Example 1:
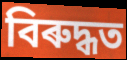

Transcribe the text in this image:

বিৰুদ্ধত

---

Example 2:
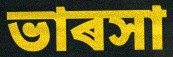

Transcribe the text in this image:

ভাৰসা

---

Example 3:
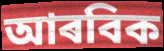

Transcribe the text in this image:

আৰবিক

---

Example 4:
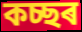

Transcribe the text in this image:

কচ্ছৰ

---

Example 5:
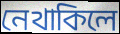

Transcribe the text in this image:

নেথাকিলে